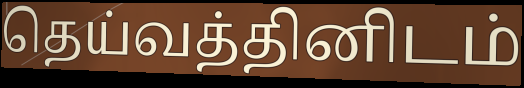
தெய்வத்தினிடம்